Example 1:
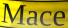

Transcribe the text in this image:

Mace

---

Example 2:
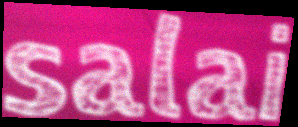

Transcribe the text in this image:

salai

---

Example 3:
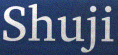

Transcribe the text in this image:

Shuji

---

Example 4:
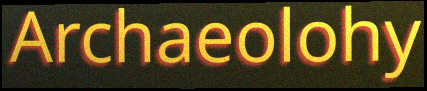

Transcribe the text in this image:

Archaeolohy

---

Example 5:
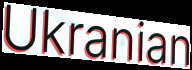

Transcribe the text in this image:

Ukranian